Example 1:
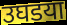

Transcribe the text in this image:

उघडया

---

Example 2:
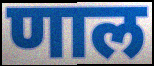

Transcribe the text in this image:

णाल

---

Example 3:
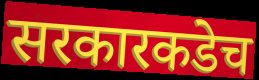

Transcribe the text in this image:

सरकारकडेच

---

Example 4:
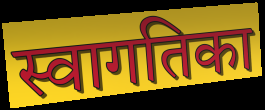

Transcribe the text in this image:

स्वागतिका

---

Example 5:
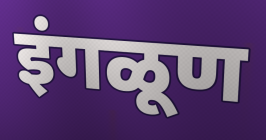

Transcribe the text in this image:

इंगळूण